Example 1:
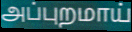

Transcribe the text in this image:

அப்புறமாய்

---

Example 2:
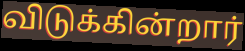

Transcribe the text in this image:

விடுக்கின்றார்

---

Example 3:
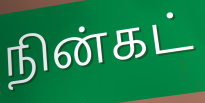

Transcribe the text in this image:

நின்கட்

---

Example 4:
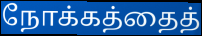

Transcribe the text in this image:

நோக்கத்தைத்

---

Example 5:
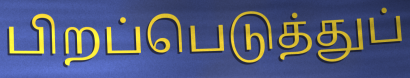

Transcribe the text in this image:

பிறப்பெடுத்துப்